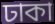
ঢাকা